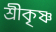
শ্রীকৃষ্ণ